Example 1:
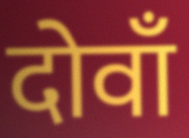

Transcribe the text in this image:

दोवाँ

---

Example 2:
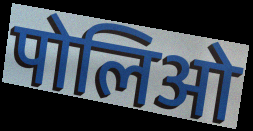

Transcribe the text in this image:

पोलिओ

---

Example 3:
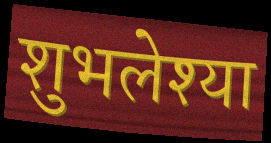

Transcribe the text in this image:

शुभलेश्या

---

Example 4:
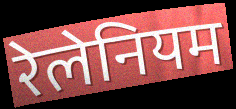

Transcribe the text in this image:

रेलेनियम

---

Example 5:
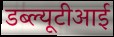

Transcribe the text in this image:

डब्ल्यूटीआई